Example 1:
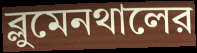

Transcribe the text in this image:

ব্লুমেনথালের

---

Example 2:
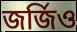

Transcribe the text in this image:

জর্জিও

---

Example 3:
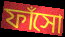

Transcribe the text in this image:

ফাঁসো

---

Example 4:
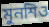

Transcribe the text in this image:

মুনশিও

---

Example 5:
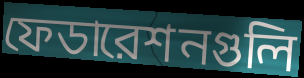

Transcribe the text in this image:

ফেডারেশনগুলি